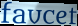
faucet